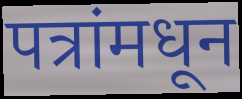
पत्रांमधून